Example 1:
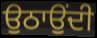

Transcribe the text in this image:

ਉਠਾਉਂਦੀ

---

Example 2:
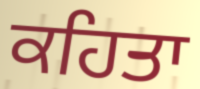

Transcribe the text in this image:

ਕਹਿਤਾ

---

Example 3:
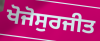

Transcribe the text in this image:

ਖੋਜੋਸੁਰਜੀਤ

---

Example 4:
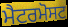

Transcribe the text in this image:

ਮੈਟਰਮੋਸਟ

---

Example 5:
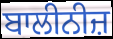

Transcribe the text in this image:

ਬਾਲੀਨੀਜ਼